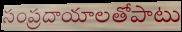
సంప్రదాయాలతోపాటు